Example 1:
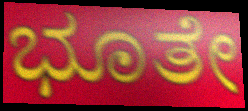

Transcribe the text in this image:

ಭೂತೇ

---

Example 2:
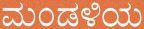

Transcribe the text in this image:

ಮಂಡಳಿಯ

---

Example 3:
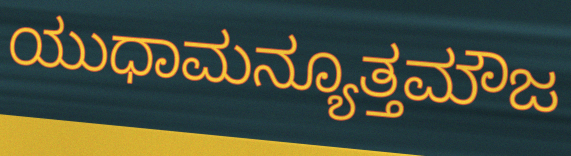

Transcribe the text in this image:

ಯುಧಾಮನ್ಯೂತ್ತಮೌಜ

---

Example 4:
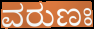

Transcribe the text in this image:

ವರುಣಃ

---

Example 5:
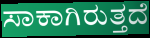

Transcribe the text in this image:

ಸಾಕಾಗಿರುತ್ತದೆ